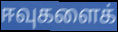
ஈவுகளைக்